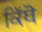
ਕਿੱਥੋ